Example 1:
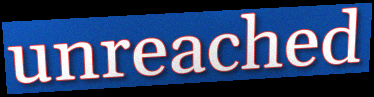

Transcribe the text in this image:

unreached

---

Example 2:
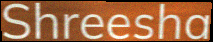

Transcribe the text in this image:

Shreesha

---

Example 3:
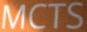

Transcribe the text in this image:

MCTS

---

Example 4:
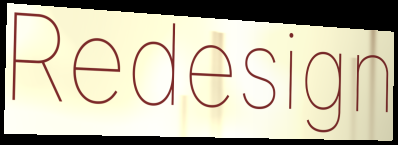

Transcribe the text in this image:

Redesign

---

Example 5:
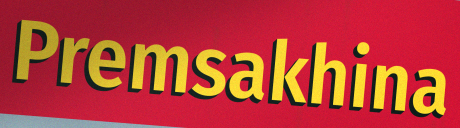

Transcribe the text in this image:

Premsakhina